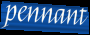
pennant